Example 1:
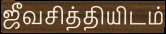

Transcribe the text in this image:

ஜீவசித்தியிடம்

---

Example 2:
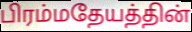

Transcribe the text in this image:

பிரம்மதேயத்தின்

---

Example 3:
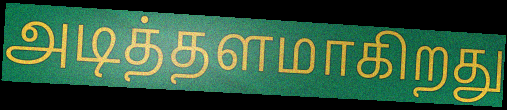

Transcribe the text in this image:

அடித்தளமாகிறது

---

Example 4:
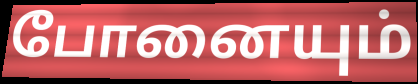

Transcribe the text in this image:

போனையும்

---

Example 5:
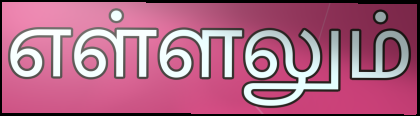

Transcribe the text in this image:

எள்ளலும்